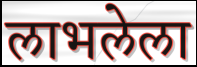
लाभलेला